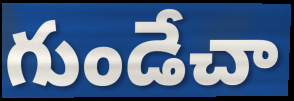
గుండేచా